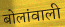
बोलांवाली